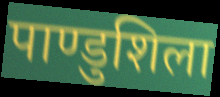
पाण्डुशिला